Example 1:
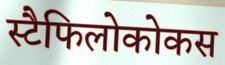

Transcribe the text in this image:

स्टैफिलोकोकस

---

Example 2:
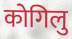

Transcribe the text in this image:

कोगिलु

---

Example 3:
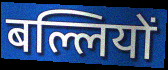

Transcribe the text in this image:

बल्लियों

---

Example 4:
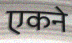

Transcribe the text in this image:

एकने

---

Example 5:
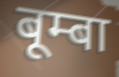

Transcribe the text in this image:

बूम्बा